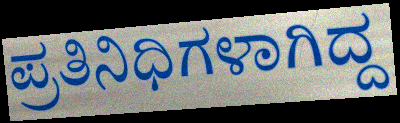
ಪ್ರತಿನಿಧಿಗಳಾಗಿದ್ದ